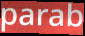
parab